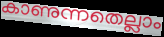
കാണുന്നതെല്ലാം